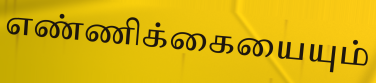
எண்ணிக்கையையும்